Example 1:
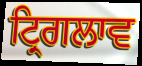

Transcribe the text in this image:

ਟ੍ਰਿਗਲਾਵ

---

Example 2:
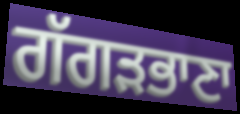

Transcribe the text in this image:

ਗੱਗੜਭਾਣਾ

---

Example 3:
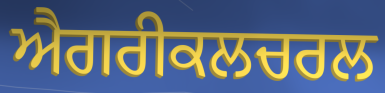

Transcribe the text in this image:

ਐਗਰੀਕਲਚਰਲ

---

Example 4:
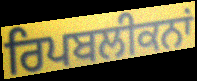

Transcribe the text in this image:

ਰਿਪਬਲੀਕਨਾਂ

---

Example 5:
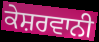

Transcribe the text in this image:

ਕੇਸ਼ਰਵਾਨੀ